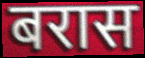
बरास